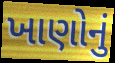
ખાણોનું